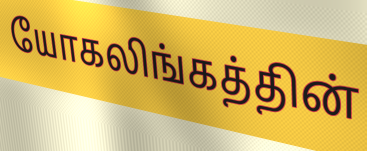
யோகலிங்கத்தின்